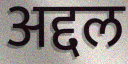
अद्दल